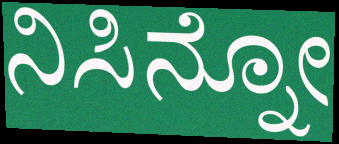
ನಿಸಿನ್ನೋ